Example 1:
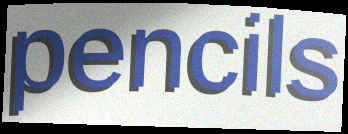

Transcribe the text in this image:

pencils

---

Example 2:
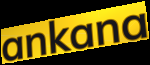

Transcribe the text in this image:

ankana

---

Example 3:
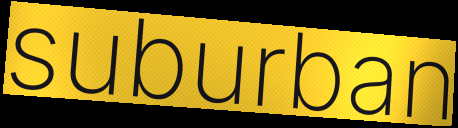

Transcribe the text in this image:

suburban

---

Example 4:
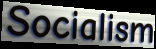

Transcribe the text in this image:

Socialism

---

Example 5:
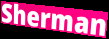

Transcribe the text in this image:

Sherman